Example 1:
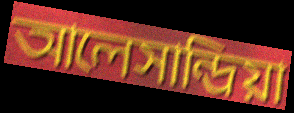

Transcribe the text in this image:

আলেসান্দ্রিয়া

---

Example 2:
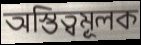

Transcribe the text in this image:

অস্তিত্বমূলক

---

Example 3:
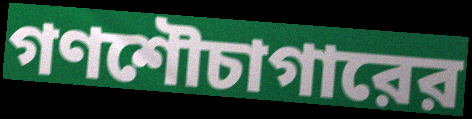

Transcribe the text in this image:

গণশৌচাগারের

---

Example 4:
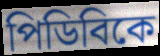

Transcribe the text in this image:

পিডিবিকে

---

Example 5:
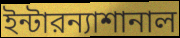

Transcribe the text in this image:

ইন্টারন্যাশানাল